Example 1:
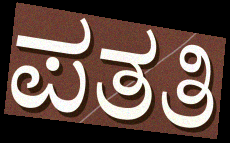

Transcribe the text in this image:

ಪತತಿ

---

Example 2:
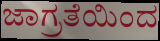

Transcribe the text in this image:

ಜಾಗ್ರತೆಯಿಂದ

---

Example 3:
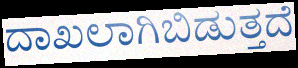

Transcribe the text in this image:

ದಾಖಲಾಗಿಬಿಡುತ್ತದೆ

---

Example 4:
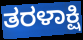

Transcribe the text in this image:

ತರಳಾಕ್ಷಿ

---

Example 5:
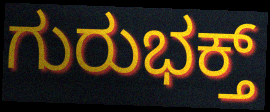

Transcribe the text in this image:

ಗುರುಭಕ್ತ್